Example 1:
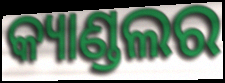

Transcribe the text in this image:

କ୍ୟାଣ୍ଡଲର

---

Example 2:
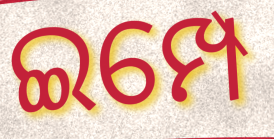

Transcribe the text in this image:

ଇମ୍ପେ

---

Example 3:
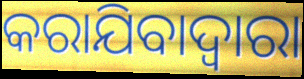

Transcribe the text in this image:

କରାଯିବାଦ୍ୱାରା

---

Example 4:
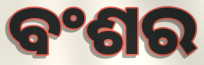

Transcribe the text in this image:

ବଂଶର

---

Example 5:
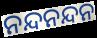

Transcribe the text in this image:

ନନ୍ଦନନ୍ଦନ